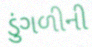
ડુંગળીની